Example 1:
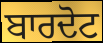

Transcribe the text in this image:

ਬਾਰਦੋਟ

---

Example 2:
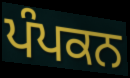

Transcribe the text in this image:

ਪੰਪਕਨ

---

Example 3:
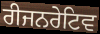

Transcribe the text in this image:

ਰੀਜਨਰੇਟਿਵ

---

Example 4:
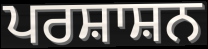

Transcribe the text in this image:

ਪਰਸ਼ਾਸ਼ਨ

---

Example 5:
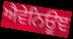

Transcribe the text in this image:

ਐਵੇਨਿਊਞ